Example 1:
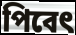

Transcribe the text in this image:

পিবেৎ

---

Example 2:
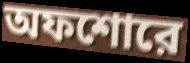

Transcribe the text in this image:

অফশোরে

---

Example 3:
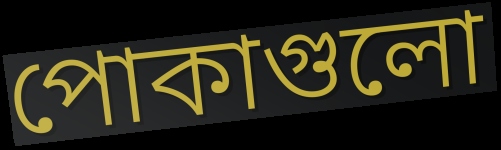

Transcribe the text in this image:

পোকাগুলো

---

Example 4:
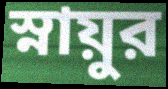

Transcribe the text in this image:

স্নায়ুর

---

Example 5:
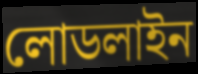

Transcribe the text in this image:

লোডলাইন